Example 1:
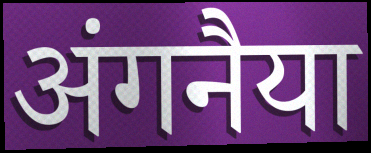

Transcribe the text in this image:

अंगनैया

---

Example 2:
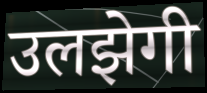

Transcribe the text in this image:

उलझेगी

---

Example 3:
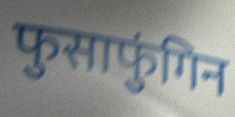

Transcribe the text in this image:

फुसाफुंगिन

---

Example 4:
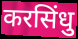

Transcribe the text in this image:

करसिंधु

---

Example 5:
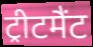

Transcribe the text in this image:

ट्रीटमैंट